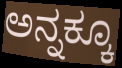
ಅನ್ನಕ್ಕೂ